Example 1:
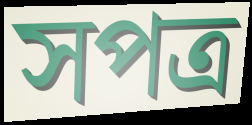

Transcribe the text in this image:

সপত্র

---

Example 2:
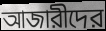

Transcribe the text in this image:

আজারীদের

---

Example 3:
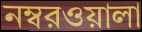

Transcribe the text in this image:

নম্বরওয়ালা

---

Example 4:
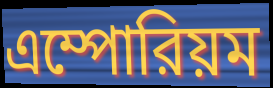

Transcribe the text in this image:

এম্পোরিয়ম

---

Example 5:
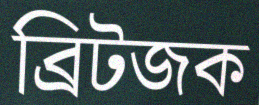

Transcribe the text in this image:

ব্রিটজক